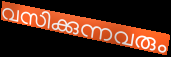
വസിക്കുന്നവരും